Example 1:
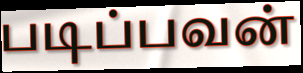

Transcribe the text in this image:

படிப்பவன்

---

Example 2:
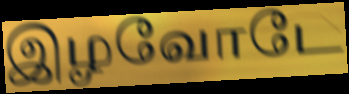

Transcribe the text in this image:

இழவோடே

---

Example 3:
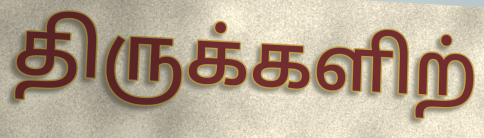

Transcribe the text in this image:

திருக்களிற்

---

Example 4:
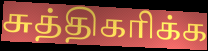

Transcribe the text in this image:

சுத்திகரிக்க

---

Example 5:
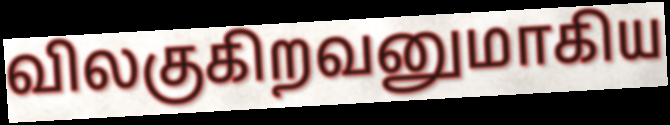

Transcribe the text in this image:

விலகுகிறவனுமாகிய